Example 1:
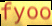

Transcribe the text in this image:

fyoo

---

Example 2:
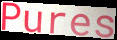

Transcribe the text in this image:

Pures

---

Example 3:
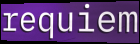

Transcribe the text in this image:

requiem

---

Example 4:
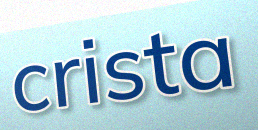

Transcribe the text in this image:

crista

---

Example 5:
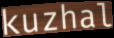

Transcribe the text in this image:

kuzhal